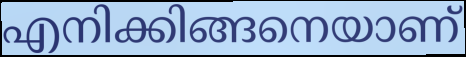
എനിക്കിങ്ങനെയാണ്